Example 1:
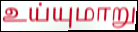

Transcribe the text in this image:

உய்யுமாறு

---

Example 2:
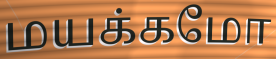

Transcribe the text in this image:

மயக்கமோ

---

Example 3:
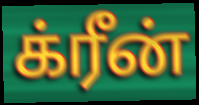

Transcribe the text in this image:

க்ரீன்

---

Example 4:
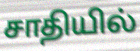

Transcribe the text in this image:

சாதியில்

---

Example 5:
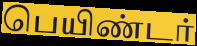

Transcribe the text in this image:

பெயிண்டர்